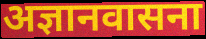
अज्ञानवासना